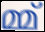
മ്മ്